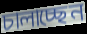
চালাচ্ছেন